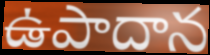
ఉపాదాన